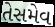
તેસમેવ